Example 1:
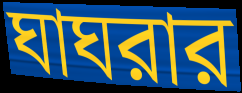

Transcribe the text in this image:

ঘাঘরার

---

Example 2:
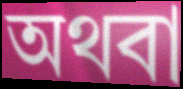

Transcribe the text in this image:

অথবা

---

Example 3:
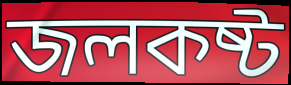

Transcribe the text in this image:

জলকষ্ট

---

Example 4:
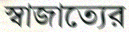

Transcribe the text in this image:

স্বাজাত্যের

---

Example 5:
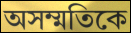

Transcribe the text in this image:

অসম্মতিকে